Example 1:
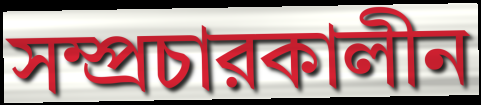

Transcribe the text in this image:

সম্প্রচারকালীন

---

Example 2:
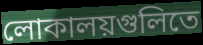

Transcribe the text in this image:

লোকালয়গুলিতে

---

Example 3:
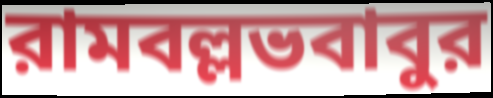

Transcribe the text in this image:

রামবল্লভবাবুর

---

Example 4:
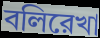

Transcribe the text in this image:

বলিরেখা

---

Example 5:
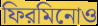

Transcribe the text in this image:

ফিরমিনোও